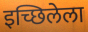
इच्छिलेला